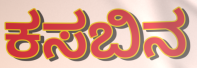
ಕಸಬಿನ